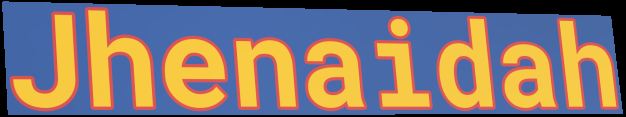
Jhenaidah